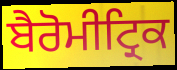
ਬੈਰੋਮੀਟ੍ਰਿਕ